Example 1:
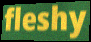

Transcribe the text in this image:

fleshy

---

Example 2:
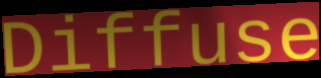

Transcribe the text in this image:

Diffuse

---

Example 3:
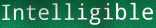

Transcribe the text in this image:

Intelligible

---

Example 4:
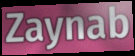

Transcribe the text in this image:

Zaynab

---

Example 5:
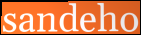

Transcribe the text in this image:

sandeho